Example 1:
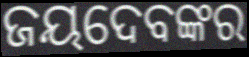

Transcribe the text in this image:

ଜୟଦେବଙ୍କର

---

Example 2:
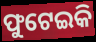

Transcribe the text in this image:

ଫୁଟେଇକି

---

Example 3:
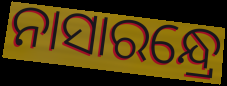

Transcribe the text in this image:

ନାସାରନ୍ଧ୍ରେ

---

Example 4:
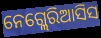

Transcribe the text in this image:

ନେଗ୍ଲେରିଆସିସ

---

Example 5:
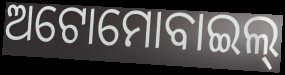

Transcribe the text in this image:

ଅଟୋମୋବାଇଲ୍